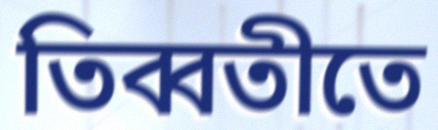
তিব্বতীতে